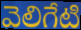
వెలిగేటి